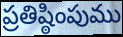
ప్రతిష్ఠింపుము